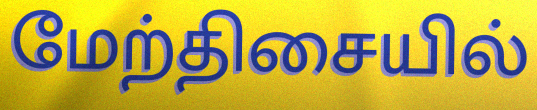
மேற்திசையில்